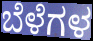
ಬೆಳೆಗಳ